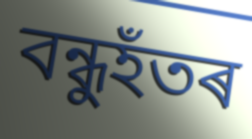
বন্ধুহঁতৰ